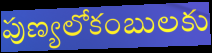
పుణ్యలోకంబులకు